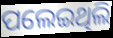
ପଲେଇଥିଲି